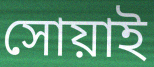
সোয়াই